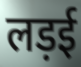
लड़ई